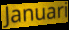
Januari